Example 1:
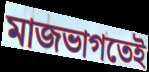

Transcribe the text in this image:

মাজভাগতেই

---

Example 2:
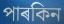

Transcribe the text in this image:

পাৰকিন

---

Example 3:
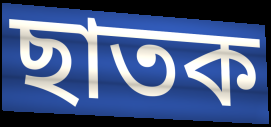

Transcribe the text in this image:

ছাতক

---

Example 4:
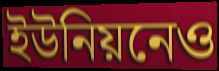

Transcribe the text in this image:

ইউনিয়নেও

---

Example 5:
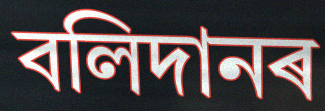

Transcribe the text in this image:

বলিদানৰ